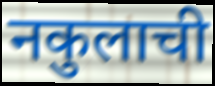
नकुलाची